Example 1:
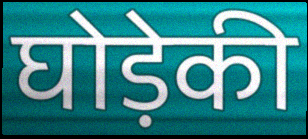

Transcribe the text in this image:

घोड़ेकी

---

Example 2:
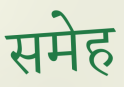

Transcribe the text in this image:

समेह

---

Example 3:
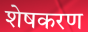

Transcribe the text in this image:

शेषकरण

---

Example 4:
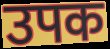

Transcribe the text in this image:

उपक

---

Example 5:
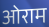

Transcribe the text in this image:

ओराम